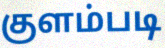
குளம்படி